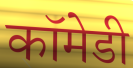
कॉमेडी